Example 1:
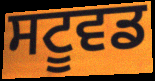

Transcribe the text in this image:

ਸਟੂਵਡ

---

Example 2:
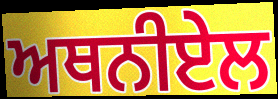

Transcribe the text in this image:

ਅਥਨੀਏਲ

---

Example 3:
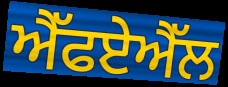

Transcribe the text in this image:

ਐੱਫਏਐੱਲ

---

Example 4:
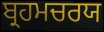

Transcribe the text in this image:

ਬ੍ਰਹਮਚਰਯ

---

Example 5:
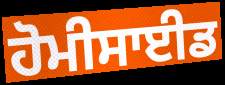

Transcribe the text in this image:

ਹੋਮੀਸਾਈਡ